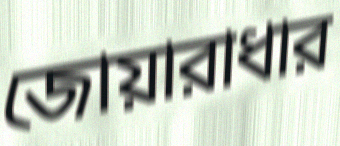
জোয়ারাধার